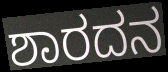
ಶಾರದನ